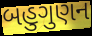
બહુગુણન